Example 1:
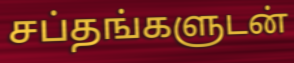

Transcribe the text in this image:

சப்தங்களுடன்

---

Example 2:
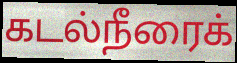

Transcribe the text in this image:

கடல்நீரைக்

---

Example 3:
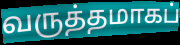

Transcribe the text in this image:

வருத்தமாகப்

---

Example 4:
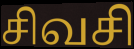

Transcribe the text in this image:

சிவசி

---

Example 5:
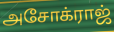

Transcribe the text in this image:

அசோக்ராஜ்